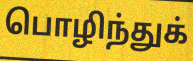
பொழிந்துக்